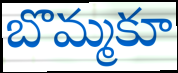
బొమ్మకూ